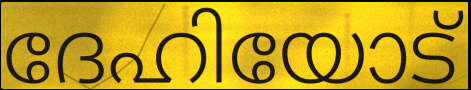
ദേഹിയോട്